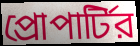
প্রোপার্টির